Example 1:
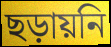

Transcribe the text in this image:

ছড়ায়নি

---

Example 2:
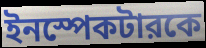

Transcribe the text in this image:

ইনস্পেকটারকে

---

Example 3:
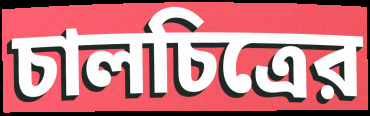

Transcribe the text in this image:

চালচিত্রের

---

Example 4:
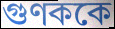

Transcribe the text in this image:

গুণককে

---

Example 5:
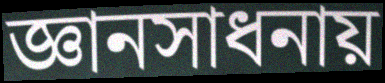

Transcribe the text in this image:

জ্ঞানসাধনায়